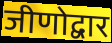
जीणोद्वार